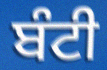
ਬੰਟੀ